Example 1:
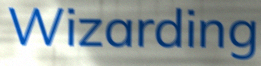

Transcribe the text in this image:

Wizarding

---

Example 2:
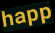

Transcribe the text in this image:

happ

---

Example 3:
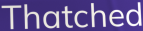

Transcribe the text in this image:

Thatched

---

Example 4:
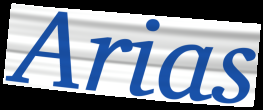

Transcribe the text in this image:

Arias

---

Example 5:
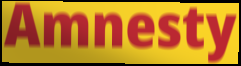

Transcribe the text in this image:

Amnesty